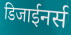
डिजाईनर्स